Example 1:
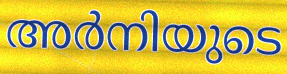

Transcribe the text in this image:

അർനിയുടെ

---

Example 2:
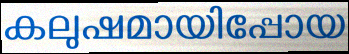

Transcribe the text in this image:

കലുഷമായിപ്പോയ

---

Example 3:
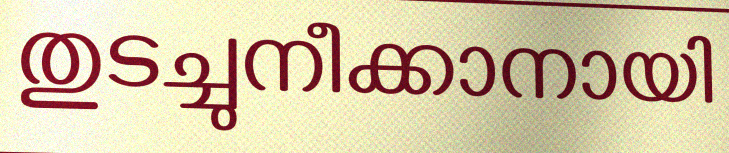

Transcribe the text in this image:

തുടച്ചുനീക്കാനായി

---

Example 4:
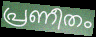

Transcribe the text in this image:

പ്രണീതം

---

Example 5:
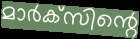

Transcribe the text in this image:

മാർക്‌സിന്റെ